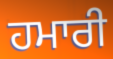
ਹਮਾਰੀ